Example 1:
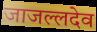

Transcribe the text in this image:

जाजल्लदेव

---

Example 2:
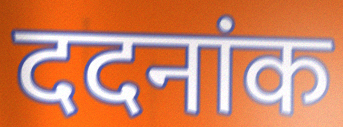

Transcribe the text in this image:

ददनांक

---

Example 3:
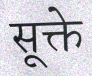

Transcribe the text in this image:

सूक्ते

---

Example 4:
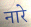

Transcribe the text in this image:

नारे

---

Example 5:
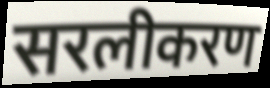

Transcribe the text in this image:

सरलीकरण